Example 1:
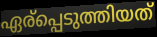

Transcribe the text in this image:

ഏര്പ്പെടുത്തിയത്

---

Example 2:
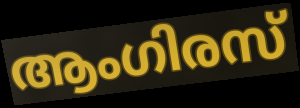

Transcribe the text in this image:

ആംഗിരസ്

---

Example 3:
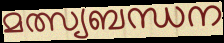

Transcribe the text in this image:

മത്സ്യബന്ധന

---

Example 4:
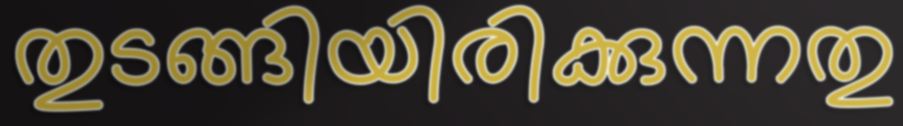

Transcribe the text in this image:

തുടങ്ങിയിരിക്കുന്നതു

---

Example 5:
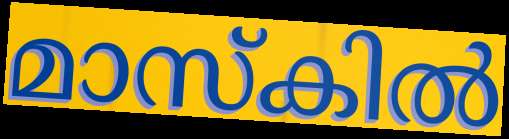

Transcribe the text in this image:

മാസ്കിൽ